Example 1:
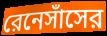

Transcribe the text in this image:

রেনেসাঁসের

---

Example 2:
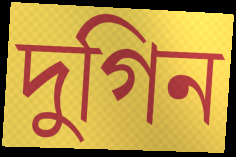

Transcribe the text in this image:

দুগিন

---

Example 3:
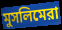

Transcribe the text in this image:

মুসলিমেরা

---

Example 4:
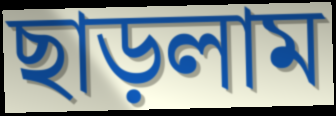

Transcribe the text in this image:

ছাড়লাম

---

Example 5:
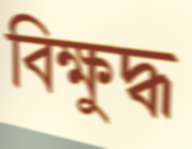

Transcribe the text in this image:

বিক্ষুদ্ধ